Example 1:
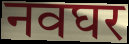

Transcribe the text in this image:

नवघर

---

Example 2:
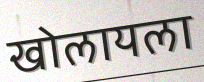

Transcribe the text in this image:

खोलायला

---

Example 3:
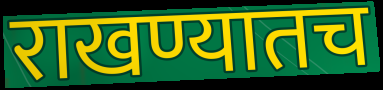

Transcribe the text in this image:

राखण्यातच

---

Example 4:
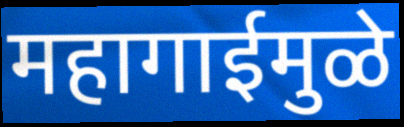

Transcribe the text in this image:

महागाईमुळे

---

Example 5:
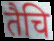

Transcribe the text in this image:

तैचि